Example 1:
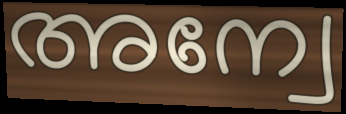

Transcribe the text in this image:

അന്വേ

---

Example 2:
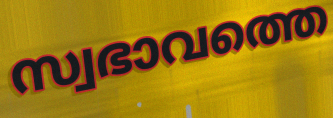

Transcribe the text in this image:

സ്വഭാവത്തെ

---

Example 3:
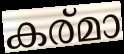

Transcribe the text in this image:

കര്മാ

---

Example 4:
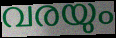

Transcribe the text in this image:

വരയും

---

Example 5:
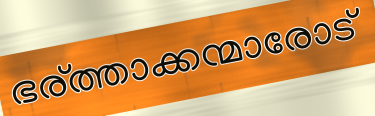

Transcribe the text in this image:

ഭര്ത്താക്കന്മാരോട്